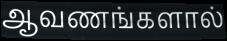
ஆவணங்களால்